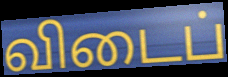
விடைப்